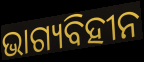
ଭାଗ୍ୟବିହୀନ